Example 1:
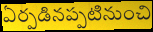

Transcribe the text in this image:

ఏర్పడినప్పటినుంచి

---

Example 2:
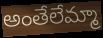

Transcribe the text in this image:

అంతేలేమ్మా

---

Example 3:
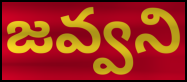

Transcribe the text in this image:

జవ్వని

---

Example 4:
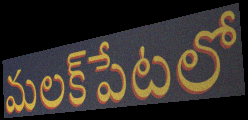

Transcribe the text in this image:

మలక్‌పేటలో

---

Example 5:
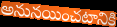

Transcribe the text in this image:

అనునయించటానికి